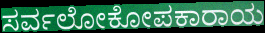
ಸರ್ವಲೋಕೋಪಕಾರಾಯ